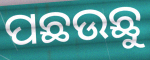
ପଛଉଛୁ